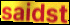
saidst